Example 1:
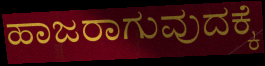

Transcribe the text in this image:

ಹಾಜರಾಗುವುದಕ್ಕೆ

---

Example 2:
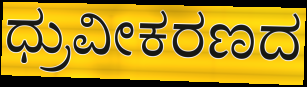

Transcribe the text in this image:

ಧ್ರುವೀಕರಣದ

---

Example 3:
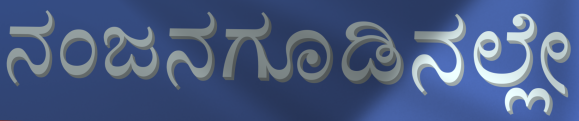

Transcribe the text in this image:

ನಂಜನಗೂಡಿನಲ್ಲೇ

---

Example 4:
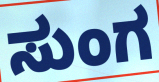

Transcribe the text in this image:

ಸುಂಗ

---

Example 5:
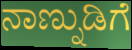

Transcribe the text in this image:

ನಾಣ್ನುಡಿಗೆ